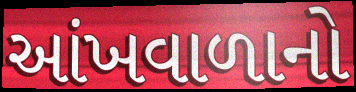
આંખવાળાનો